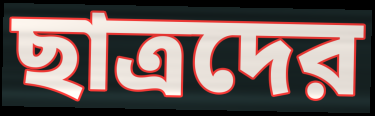
ছাত্রদের